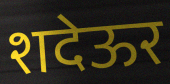
शदेऊर